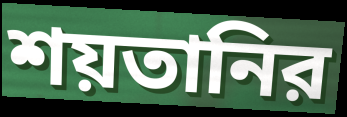
শয়তানির